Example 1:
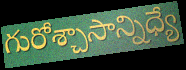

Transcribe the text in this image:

గురోశ్చాసాన్నిధ్యే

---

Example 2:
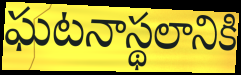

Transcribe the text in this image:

ఘటనాస్థలానికి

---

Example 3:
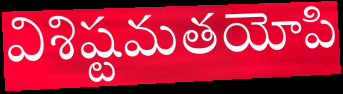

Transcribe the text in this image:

విశిష్టమతయోపి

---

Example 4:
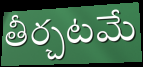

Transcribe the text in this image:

తీర్చటమే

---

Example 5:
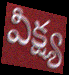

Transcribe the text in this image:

వీక్ష్య